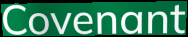
Covenant